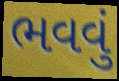
ભવવું